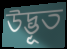
উদ্ভূত